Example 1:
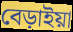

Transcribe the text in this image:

বেড়াইয়া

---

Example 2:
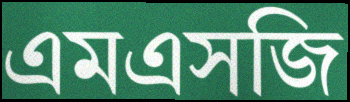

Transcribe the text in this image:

এমএসজি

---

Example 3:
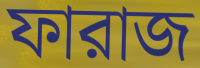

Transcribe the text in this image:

ফারাজ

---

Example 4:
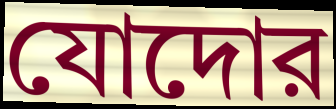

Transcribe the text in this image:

যোদোর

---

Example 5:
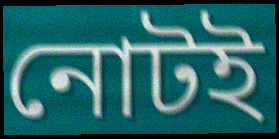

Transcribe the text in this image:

নোটই